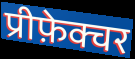
प्रीफ़ेक्चर